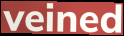
veined